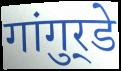
गांगुर्डे